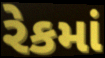
રેકમાં